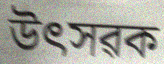
উৎসৱক